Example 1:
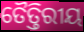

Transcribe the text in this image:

ତୈତ୍ତିରୀୟ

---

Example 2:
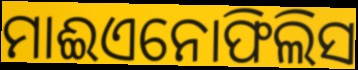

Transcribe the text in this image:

ମାଈଏନୋଫିଲିସ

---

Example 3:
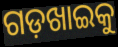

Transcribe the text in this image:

ଗଡ଼ଖାଇକୁ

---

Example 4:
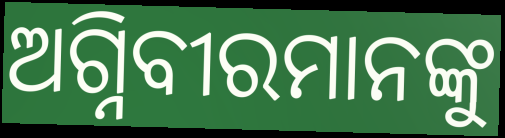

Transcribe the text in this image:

ଅଗ୍ନିବୀରମାନଙ୍କୁ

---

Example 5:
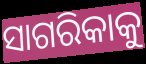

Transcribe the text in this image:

ସାଗରିକାକୁ